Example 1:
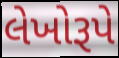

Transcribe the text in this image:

લેખોરૂપે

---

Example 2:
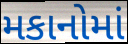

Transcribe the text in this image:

મકાનોમાં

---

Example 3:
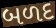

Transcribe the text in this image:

બળદ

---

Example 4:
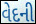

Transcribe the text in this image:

વેદની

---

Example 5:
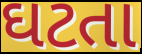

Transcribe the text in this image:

ઘટતા